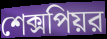
শেক্সপিয়র